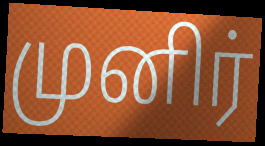
முனிர்